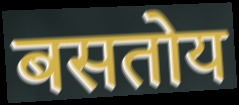
बसतोय